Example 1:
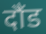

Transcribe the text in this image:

दौंड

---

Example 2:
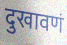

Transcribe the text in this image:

दुखावणं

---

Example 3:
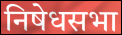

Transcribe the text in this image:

निषेधसभा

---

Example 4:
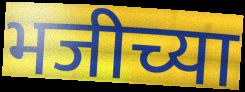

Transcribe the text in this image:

भजीच्या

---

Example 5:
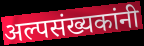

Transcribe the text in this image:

अल्पसंख्यकांनी